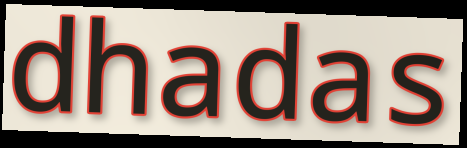
dhadas